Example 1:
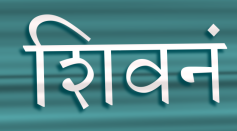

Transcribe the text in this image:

शिवनं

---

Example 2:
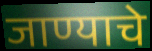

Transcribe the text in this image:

जाण्याचे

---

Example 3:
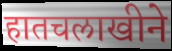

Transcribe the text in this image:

हातचलाखीने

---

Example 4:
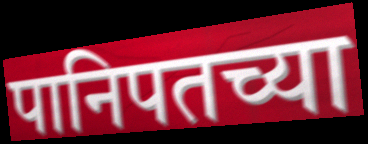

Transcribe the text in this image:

पानिपतच्या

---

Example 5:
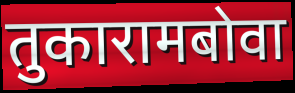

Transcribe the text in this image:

तुकारामबोवा